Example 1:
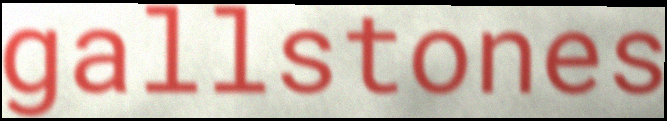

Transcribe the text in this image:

gallstones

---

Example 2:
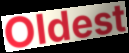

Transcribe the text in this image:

Oldest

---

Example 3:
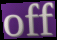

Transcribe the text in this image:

off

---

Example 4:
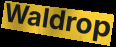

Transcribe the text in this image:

Waldrop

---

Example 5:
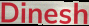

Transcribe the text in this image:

Dinesh